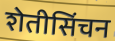
शेतीसिंचन